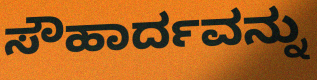
ಸೌಹಾರ್ದವನ್ನು